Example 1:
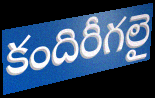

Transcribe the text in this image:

కందిరీగలై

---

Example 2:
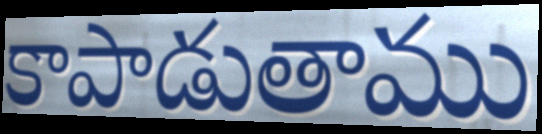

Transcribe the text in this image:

కాపాడుతాము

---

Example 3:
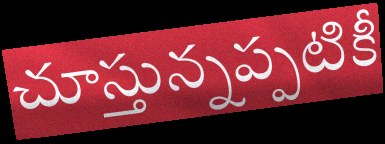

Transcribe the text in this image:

చూస్తున్నప్పటికీ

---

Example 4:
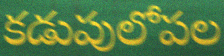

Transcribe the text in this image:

కడుపులోపల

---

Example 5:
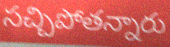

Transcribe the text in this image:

సచ్చిపోతన్నారు